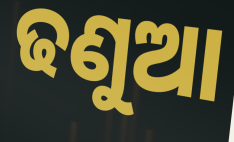
ଢଣୁଆ